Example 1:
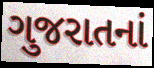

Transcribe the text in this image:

ગુજરાતનાં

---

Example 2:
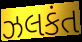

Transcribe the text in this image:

ઝલકંત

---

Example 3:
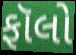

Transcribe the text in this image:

ફૉલો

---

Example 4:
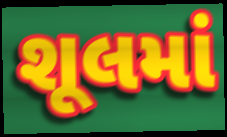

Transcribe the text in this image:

શૂલમાં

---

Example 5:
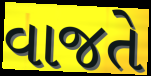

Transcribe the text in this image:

વાજતે